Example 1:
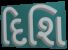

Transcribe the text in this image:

દિશિ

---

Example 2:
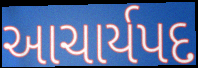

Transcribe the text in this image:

આચાર્યપદ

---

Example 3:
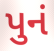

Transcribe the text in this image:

પુનં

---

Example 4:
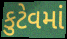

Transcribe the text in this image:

કુટેવમાં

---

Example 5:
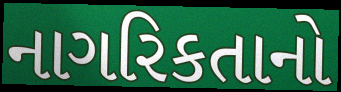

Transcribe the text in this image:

નાગરિકતાનો